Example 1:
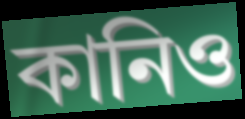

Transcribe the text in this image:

কানিও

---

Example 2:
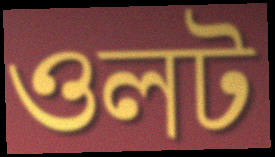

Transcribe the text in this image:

ওলট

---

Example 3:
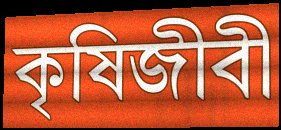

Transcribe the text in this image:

কৃষিজীবী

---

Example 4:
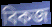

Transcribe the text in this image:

বিকজ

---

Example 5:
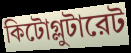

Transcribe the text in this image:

কিটোগ্লুটারেট